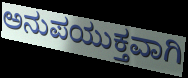
ಅನುಪಯುಕ್ತವಾಗಿ